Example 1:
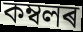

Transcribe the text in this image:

কম্বলৰ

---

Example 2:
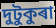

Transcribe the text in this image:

দুটুকুৰা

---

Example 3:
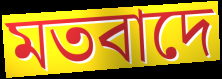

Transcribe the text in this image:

মতবাদে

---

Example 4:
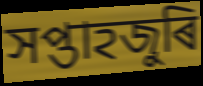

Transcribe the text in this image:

সপ্তাহজুৰি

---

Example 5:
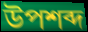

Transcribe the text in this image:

উপশব্দ